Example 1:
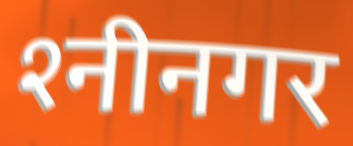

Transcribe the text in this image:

श्नीनगर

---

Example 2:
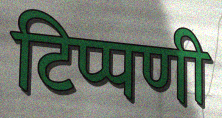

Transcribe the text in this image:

टिप्पणी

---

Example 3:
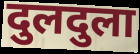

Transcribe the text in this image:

दुलदुला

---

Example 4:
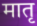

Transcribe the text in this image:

मातृ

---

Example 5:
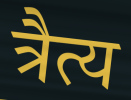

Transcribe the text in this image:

त्रैत्य